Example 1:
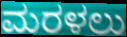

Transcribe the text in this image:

ಮರಳಲು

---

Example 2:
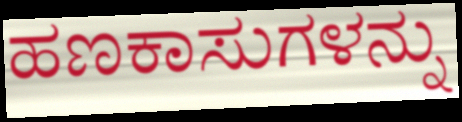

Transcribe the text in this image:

ಹಣಕಾಸುಗಳನ್ನು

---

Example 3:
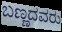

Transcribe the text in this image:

ಬಣ್ಣದವರು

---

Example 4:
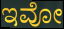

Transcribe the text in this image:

ಇವೋ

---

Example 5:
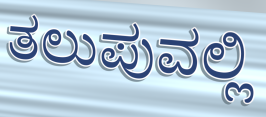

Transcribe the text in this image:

ತಲುಪುವಲ್ಲಿ